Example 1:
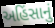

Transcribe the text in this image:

અહિંસાનું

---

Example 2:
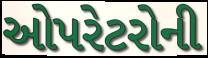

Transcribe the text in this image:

ઓપરેટરોની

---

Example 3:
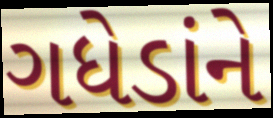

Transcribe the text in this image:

ગધેડાંને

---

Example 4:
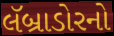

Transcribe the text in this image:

લૅબ્રાડોરનો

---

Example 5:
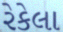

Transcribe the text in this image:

રેકેલા